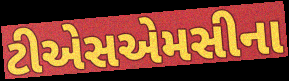
ટીએસએમસીના